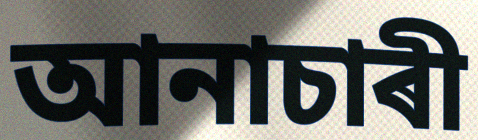
আনাচাৰী